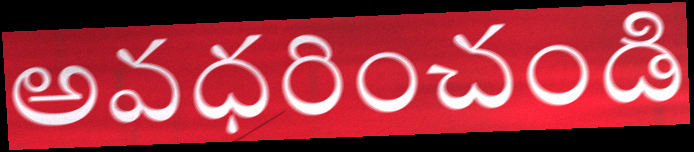
అవధరించండి